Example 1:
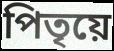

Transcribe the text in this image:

পিতৃয়ে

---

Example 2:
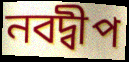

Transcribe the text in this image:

নবদ্বীপ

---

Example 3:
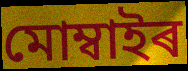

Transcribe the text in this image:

মোম্বাইৰ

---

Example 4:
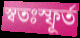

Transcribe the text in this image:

স্বতঃস্ফূৰ্ত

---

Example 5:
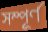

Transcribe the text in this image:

সম্পূৰ্ণ